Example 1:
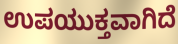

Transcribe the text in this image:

ಉಪಯುಕ್ತವಾಗಿದೆ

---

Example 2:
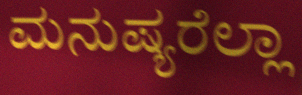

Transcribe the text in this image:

ಮನುಷ್ಯರೆಲ್ಲಾ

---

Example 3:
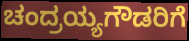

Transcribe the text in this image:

ಚಂದ್ರಯ್ಯಗೌಡರಿಗೆ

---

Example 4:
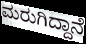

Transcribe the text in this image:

ಮರುಗಿದ್ದಾನೆ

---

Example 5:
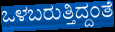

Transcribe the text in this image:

ಒಳಬರುತ್ತಿದ್ದಂತೆ